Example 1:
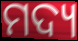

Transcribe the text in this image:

ମଦ୍ୟ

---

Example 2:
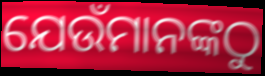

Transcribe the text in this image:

ଯେଉଁମାନଙ୍କଠୁ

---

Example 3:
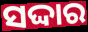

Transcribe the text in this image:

ସଦ୍ଦାର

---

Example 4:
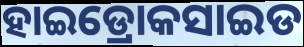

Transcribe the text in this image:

ହାଇଡ୍ରୋକସାଇଡ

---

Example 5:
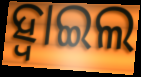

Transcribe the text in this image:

ହ୍ବାଇଲ